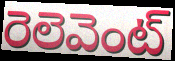
రెలెవెంట్